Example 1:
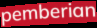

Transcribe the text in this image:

pemberian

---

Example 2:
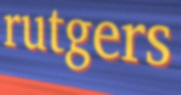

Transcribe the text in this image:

rutgers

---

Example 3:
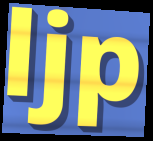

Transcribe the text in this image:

ljp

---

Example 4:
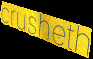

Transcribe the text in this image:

crusheth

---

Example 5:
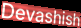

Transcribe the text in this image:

Devashish